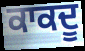
ਕਾਕਦੂ